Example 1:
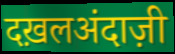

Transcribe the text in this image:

दख़लअंदाज़ी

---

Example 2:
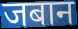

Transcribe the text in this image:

जबान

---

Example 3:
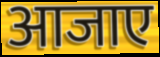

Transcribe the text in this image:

आजाए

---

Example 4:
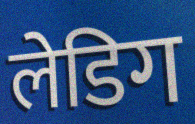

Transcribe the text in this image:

लेडिग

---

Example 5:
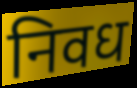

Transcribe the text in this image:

निवध